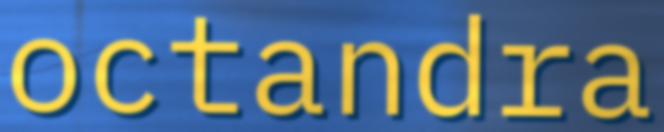
octandra